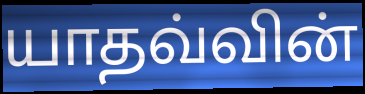
யாதவ்வின்